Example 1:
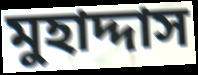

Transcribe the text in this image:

মুহাদ্দাস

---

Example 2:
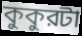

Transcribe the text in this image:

কুকুরটা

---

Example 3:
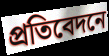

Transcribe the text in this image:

প্রতিবেদনে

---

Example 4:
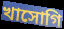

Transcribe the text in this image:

খাসোগি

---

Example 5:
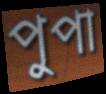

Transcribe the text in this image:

পুপা